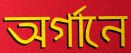
অর্গানে